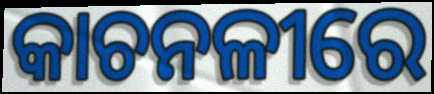
କାଚନଳୀରେ